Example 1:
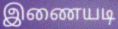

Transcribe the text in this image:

இணையடி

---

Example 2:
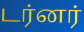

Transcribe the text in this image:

டர்னர்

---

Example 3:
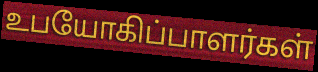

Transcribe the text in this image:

உபயோகிப்பாளர்கள்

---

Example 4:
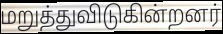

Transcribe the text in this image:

மறுத்துவிடுகின்றனர்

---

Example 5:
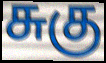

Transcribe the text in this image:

சுகு